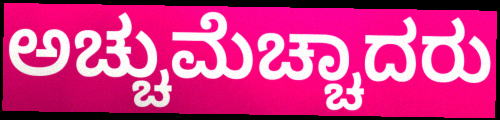
ಅಚ್ಚುಮೆಚ್ಚಾದರು